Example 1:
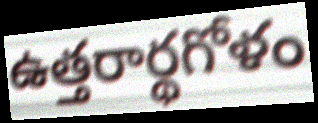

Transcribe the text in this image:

ఉత్తరార్థగోళం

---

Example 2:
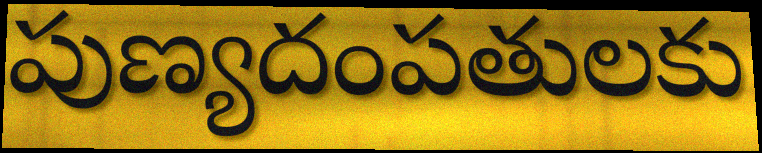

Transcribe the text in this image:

పుణ్యదంపతులకు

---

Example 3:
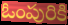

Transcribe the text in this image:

ఓంపురికి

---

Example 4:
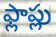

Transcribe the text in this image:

ఫ్లాప్లు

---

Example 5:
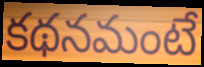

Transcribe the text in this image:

కథనమంటే